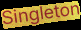
Singleton